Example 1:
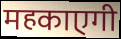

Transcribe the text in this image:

महकाएगी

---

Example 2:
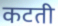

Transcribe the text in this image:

कटती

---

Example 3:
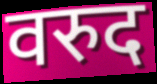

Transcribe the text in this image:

वरुद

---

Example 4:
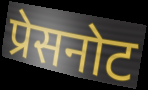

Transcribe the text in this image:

प्रेसनोट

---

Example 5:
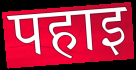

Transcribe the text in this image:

पहाइ